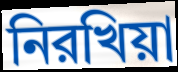
নিরখিয়া